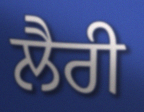
ਲੈਰੀ